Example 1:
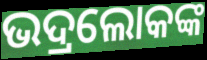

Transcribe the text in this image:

ଭଦ୍ରଲୋକଙ୍କ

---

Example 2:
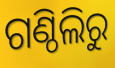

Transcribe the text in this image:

ଗଣ୍ଠିଲିରୁ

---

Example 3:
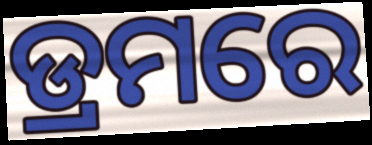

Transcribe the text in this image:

ଡ୍ରମରେ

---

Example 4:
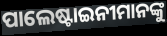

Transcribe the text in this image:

ପାଲେଷ୍ଟାଇନୀମାନଙ୍କୁ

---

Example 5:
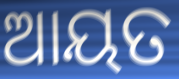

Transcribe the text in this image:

ଆୟତ